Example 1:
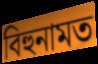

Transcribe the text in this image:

বিহুনামত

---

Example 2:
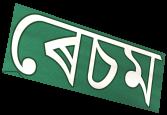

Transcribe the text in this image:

ৰেচম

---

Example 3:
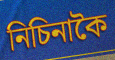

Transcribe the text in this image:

নিচিনাকৈ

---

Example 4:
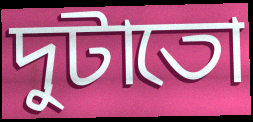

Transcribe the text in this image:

দুটাতো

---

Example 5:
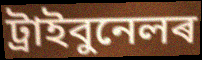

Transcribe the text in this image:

ট্ৰাইবুনেলৰ